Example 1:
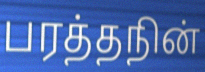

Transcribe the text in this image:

பரத்தநின்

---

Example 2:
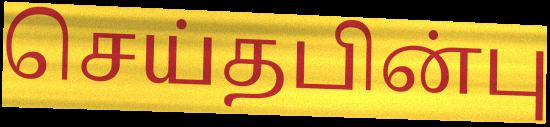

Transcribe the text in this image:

செய்தபின்பு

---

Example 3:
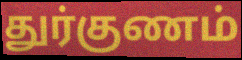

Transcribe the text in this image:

துர்குணம்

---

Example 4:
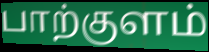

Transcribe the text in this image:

பாற்குளம்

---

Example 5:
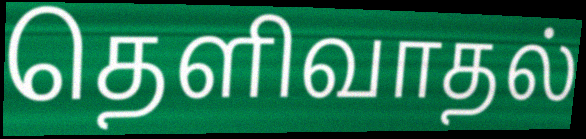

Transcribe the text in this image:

தெளிவாதல்